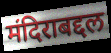
मंदिराबद्दल